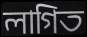
লাগিত